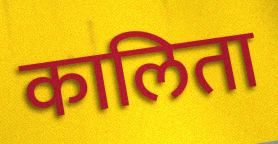
कालिता